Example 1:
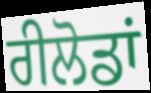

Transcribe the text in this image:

ਰੀਲੋਡਾਂ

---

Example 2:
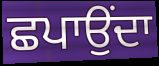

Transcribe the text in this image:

ਛਪਾਉਂਦਾ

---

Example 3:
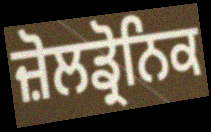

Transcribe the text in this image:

ਜ਼ੋਲਡ੍ਰੋਨਿਕ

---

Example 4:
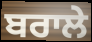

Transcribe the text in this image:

ਬਰਾਲੇ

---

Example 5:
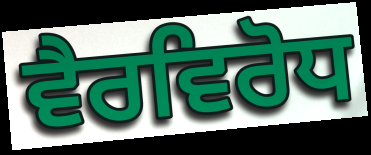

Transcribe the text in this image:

ਵੈਰਵਿਰੋਧ